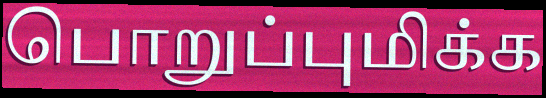
பொறுப்புமிக்க